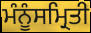
ਮੰਨੂੰਸਮ੍ਰਿਤੀ